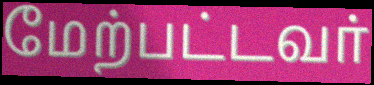
மேற்பட்டவர்